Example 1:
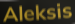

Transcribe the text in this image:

Aleksis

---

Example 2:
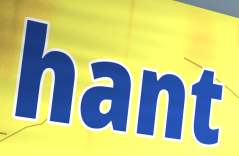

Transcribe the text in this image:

hant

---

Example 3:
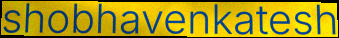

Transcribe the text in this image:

shobhavenkatesh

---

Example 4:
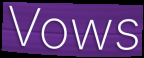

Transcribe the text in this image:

Vows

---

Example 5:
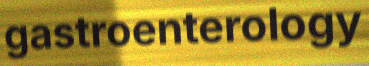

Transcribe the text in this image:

gastroenterology